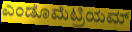
ಎಂಡೊಮೆಟ್ರಿಯಮ್